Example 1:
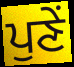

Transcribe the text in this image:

ਪੁਣੇਂ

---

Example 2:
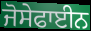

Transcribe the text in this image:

ਜੋਸੇਫਾਈਨ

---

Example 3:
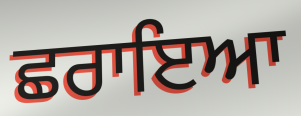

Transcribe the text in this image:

ਛਰਾਇਆ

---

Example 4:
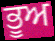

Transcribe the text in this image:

ਭੂਅ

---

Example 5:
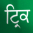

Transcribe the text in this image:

ਟ੍ਰਿਕ